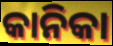
କାନିକା